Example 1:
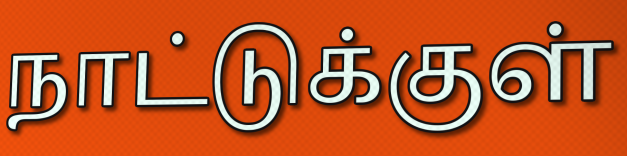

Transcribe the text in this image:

நாட்டுக்குள்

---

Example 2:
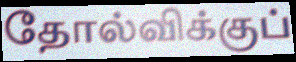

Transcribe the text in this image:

தோல்விக்குப்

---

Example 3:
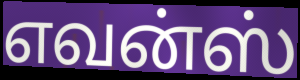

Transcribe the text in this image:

எவன்ஸ்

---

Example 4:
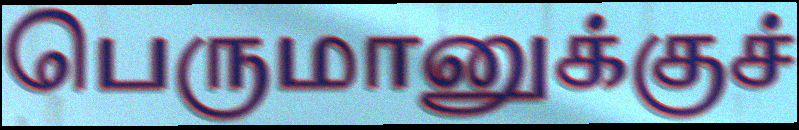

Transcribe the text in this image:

பெருமானுக்குச்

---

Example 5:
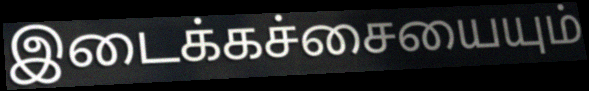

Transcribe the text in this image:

இடைக்கச்சையையும்